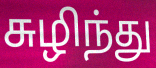
சுழிந்து